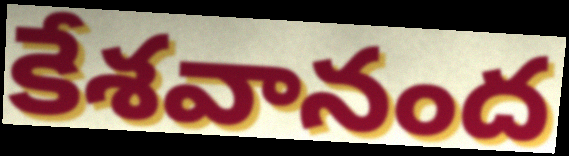
కేశవానంద